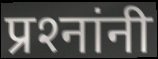
प्रश्नांनी